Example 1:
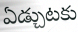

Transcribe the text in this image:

ఏడ్చుటకు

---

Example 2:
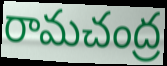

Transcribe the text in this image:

రామచంద్ర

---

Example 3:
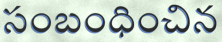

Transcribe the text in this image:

సంబంధించిన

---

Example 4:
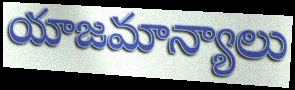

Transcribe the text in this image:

యాజమాన్యాలు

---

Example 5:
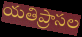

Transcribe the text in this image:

యతిప్రాసల